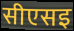
सीएसइ